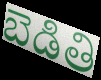
బెడితి